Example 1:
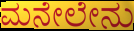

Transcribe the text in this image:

ಮನೇಲೇನು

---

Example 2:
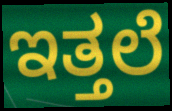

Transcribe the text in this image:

ಇತ್ತಲೆ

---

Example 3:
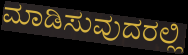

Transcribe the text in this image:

ಮಾಡಿಸುವುದರಲ್ಲಿ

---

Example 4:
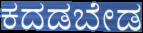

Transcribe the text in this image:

ಕದಡಬೇಡ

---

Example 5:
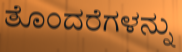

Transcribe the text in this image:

ತೊಂದರೆಗಳನ್ನು